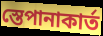
স্তেপানাকার্ত